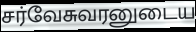
சர்வேசுவரனுடைய